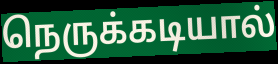
நெருக்கடியால்